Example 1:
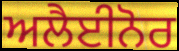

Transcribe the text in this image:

ਅਲੈਈਨੋਰ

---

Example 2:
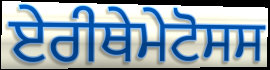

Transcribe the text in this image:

ਏਰੀਥੇਮੇਟੋਸਸ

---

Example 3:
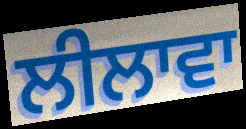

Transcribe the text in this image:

ਲੀਲਾਵਾ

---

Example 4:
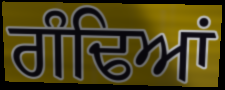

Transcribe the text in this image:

ਗੰਢਿਆਂ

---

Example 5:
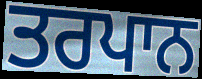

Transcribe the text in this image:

ਤਰਪਾਨ